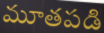
మూతపడి